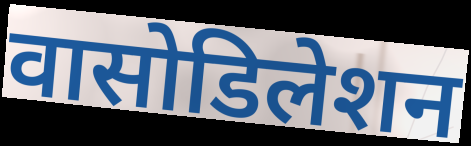
वासोडिलेशन